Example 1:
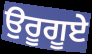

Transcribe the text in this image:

ਉਰੂਗੂਏ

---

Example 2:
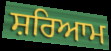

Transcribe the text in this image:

ਸ਼ਰਿਆਮ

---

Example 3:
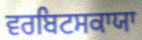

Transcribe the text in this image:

ਵਰਬਿਟਸਕਾਯਾ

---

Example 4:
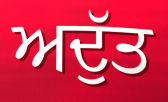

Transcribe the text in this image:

ਅਦੁੱਤ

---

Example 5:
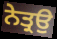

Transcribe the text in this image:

ਨੇਤ੍ਰਉ